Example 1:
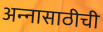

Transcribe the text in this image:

अन्नासाठीची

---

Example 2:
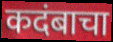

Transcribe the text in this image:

कदंबाचा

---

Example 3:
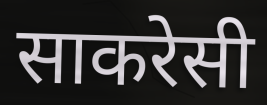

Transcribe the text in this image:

साकरेसी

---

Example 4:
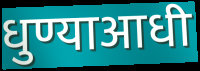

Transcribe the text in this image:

धुण्याआधी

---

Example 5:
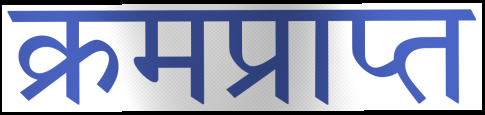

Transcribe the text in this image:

क्रमप्राप्त